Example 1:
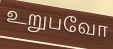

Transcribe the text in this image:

உறுபவோ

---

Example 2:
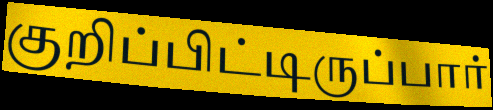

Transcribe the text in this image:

குறிப்பிட்டிருப்பார்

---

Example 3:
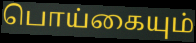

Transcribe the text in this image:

பொய்கையும்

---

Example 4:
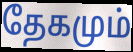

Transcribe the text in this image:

தேகமும்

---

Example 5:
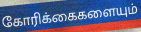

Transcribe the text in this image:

கோரிக்கைகளையும்